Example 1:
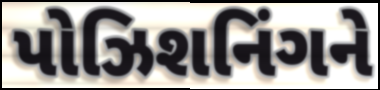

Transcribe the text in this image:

પોઝિશનિંગને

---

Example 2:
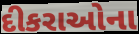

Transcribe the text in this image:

દીકરાઓના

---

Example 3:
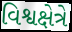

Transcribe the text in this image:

વિશ્વક્ષેત્રે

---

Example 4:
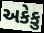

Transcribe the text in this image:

અકેકુ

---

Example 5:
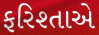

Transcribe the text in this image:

ફરિશ્તાએ